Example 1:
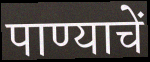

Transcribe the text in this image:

पाण्याचें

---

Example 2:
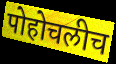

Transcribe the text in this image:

पोहोचलीच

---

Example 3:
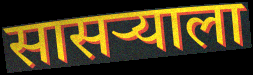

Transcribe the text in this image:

सासर्‍याला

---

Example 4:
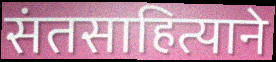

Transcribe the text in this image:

संतसाहित्याने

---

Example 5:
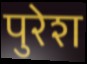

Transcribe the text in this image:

पुरेश